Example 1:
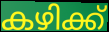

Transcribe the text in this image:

കഴിക്ക്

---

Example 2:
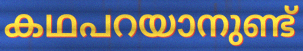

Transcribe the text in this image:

കഥപറയാനുണ്ട്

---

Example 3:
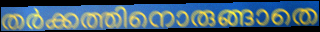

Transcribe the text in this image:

തർക്കത്തിനൊരുങ്ങാതെ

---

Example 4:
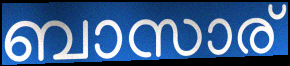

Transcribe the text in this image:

ബാസാര്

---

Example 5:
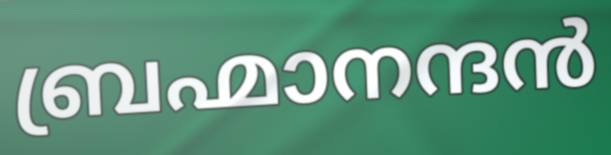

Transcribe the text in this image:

ബ്രഹ്മാനന്ദൻ